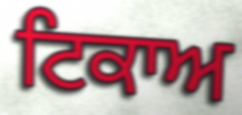
ਟਿਕਾਅ